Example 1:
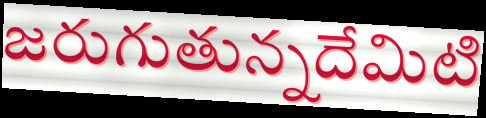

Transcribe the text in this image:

జరుగుతున్నదేమిటి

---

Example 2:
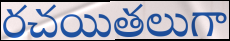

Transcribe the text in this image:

రచయితలుగా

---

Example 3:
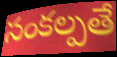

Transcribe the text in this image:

సంకల్పతే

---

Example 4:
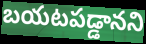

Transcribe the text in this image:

బయటపడ్డానని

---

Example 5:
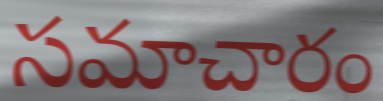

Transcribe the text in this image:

సమాచారం